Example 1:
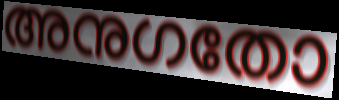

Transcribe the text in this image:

അനുഗതോ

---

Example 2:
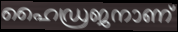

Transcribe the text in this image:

ഹൈഡ്രജനാണ്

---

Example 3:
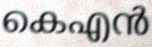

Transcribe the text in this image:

കെഎൻ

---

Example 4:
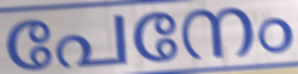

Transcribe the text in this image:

പേനേം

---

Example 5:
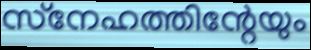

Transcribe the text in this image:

സ്‌നേഹത്തിന്റേയും